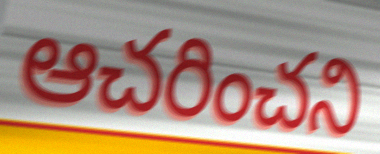
ఆచరించని